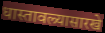
धास्तावल्यासारखे